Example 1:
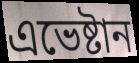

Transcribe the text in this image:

এভেষ্টান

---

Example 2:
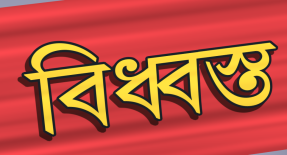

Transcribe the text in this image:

বিধ্বস্ত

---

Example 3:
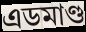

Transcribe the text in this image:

এডমাণ্ড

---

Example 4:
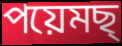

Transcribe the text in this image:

পয়েমছ্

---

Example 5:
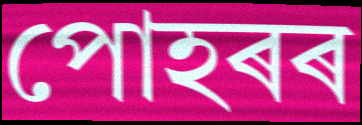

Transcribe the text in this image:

পোহৰৰ